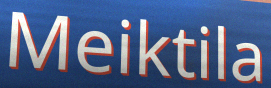
Meiktila